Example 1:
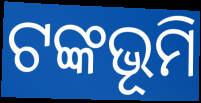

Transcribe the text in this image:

ଟଙ୍କଭୂମି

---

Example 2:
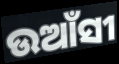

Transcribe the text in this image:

ଉଆଁସୀ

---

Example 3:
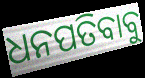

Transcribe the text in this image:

ଧନପତିବାବୁ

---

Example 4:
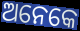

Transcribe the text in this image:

ଅନେକେ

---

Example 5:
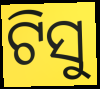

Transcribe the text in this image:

ଟିସୁ